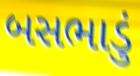
બસભાડું